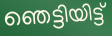
ഞെട്ടിയിട്ട്